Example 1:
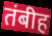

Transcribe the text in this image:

तंबीह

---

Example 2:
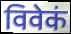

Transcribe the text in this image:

विवेकं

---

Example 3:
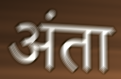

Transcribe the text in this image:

अंता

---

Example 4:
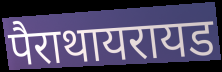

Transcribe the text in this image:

पैराथायरायड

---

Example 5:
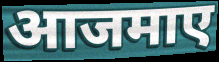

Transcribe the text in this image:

आजमाए